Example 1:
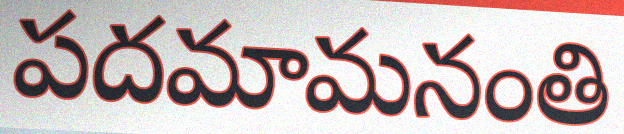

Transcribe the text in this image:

పదమామనంతి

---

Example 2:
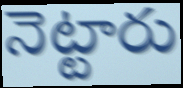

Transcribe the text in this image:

నెట్టారు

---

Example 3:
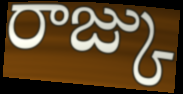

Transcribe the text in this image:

రాజ్కు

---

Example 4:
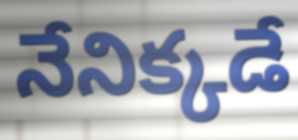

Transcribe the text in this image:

నేనిక్కడే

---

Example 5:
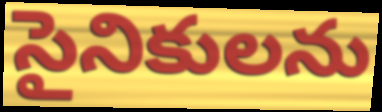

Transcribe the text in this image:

సైనికులను